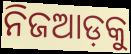
ନିଜଆଡ଼କୁ